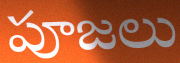
పూజలు